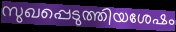
സുഖപ്പെടുത്തിയശേഷം